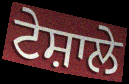
ਟੇਸ਼ਾਲੇ